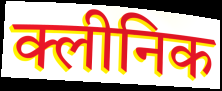
क्‍लीनिक